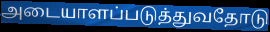
அடையாளப்படுத்துவதோடு